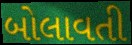
બોલાવતી